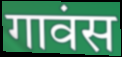
गावंस